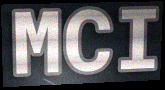
MCI